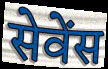
सेवेंस